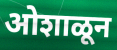
ओशाळून